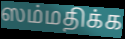
ஸம்மதிக்க